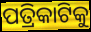
ପତ୍ରିକାଟିକୁ